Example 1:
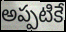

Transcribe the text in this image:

అప్పటికే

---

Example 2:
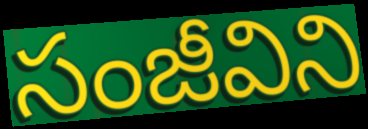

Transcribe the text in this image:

సంజీవిని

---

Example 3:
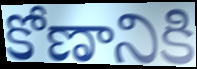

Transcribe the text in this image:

కోణానికి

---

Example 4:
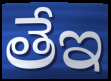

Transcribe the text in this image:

తేఇ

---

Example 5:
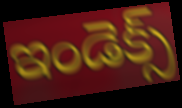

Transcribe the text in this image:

ఇండెక్స్